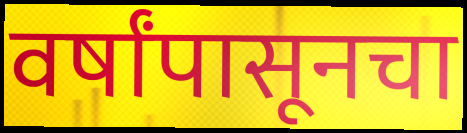
वर्षांपासूनचा